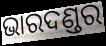
ଭାରଦଣ୍ଡର